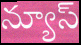
న్యూస్